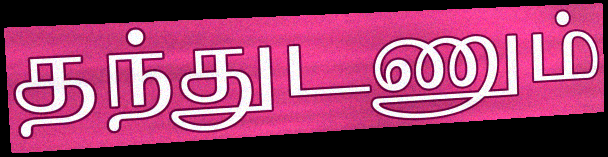
தந்துடணும்